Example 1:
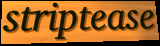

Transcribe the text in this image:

striptease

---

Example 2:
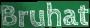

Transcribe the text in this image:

Bruhat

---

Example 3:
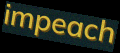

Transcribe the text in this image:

impeach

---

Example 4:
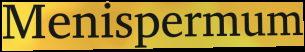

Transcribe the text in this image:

Menispermum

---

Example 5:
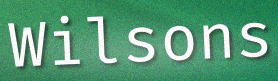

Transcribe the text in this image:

Wilsons